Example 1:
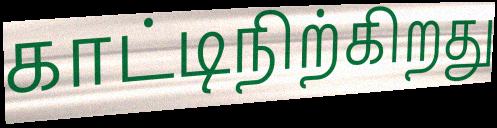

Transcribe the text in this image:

காட்டிநிற்கிறது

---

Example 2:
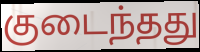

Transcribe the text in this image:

குடைந்தது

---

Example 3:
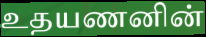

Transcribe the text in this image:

உதயணனின்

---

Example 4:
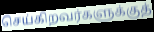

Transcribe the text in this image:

செய்கிறவர்களுக்குத்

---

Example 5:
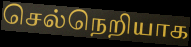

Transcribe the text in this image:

செல்நெறியாக